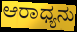
ಆರಾಧ್ಯನು